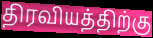
திரவியத்திற்கு